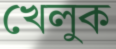
খেলুক